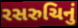
રસરુચિનું